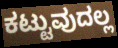
ಕಟ್ಟುವುದಲ್ಲ